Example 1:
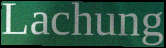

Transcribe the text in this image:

Lachung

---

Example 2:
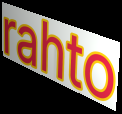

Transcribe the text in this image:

rahto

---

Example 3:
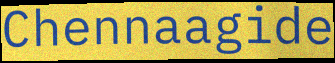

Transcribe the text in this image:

Chennaagide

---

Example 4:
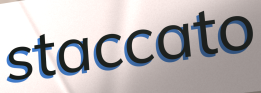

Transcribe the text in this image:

staccato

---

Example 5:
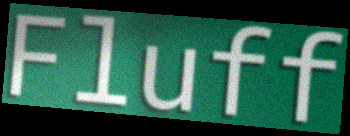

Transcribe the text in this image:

Fluff